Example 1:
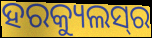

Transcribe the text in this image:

ହରକ୍ୟୁଲସ୍‍ର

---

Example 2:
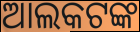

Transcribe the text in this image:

ଆଲକଟଙ୍କ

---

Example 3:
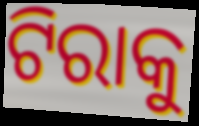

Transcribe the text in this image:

ଟିରାକୁ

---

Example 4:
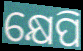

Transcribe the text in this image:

କ୍ଷେପି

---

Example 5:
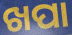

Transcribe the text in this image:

ଖପା